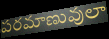
పరమాణువులా